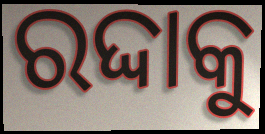
ରଦ୍ଦାକୁ